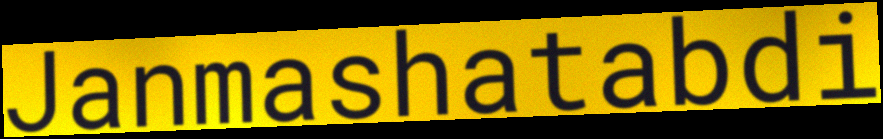
Janmashatabdi